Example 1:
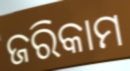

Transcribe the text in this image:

ଜରିକାମ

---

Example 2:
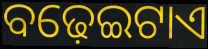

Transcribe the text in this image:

ବଢ଼େଇଟାଏ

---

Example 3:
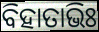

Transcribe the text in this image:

ବିହାତାଭିଃ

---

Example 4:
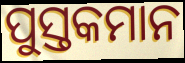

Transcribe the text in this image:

ପୁସ୍ତକମାନ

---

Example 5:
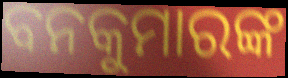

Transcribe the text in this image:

ବନକୁମାରଙ୍କ